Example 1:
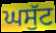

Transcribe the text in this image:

ਘਸੁੱਟ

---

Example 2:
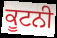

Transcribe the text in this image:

ਕੂਟਨੀ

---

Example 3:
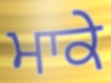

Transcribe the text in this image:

ਮਾਕੇ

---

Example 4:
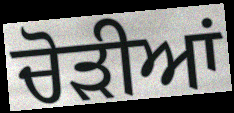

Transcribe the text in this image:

ਚੋੜੀਆਂ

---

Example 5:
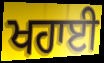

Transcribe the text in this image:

ਖਹਾਈ